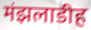
मंझलाडीह